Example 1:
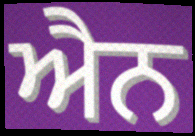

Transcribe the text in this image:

ਐਨ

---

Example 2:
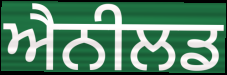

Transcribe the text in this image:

ਐਨੀਲਡ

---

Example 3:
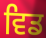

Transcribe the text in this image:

ਵਿਡ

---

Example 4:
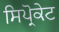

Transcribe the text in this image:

ਸਿਪ੍ਰੋਕੇਟ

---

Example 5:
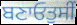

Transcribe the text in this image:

ਬਣਾਓਤੁਸੀਂ